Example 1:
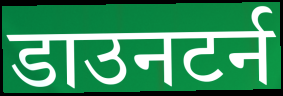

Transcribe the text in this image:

डाउनटर्न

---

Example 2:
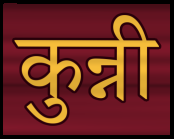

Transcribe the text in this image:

कुन्नी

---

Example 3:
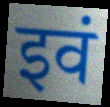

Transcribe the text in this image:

इवं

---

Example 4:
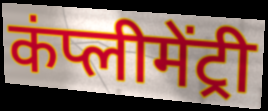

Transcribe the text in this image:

कंप्लीमेंट्री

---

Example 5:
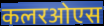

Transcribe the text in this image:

कलरओएस